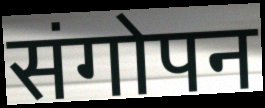
संगोपन